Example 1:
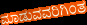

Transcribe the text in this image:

ಮಾಡುವವರಿಗಿಂತ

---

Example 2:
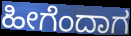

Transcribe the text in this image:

ಹೀಗೆಂದಾಗ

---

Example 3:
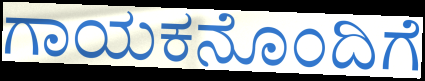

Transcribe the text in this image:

ಗಾಯಕನೊಂದಿಗೆ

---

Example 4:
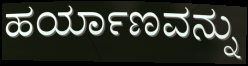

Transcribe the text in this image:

ಹರ್ಯಾಣವನ್ನು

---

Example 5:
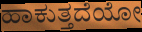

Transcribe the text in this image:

ಹಾಕುತ್ತದೆಯೋ